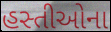
હસ્તીઓના